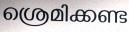
ശ്രെമിക്കണ്ട